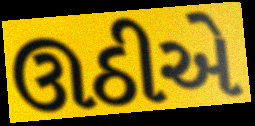
ઊઠીએ